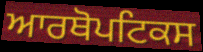
ਆਰਥੋਪਟਿਕਸ